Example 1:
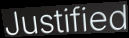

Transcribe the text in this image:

Justified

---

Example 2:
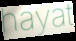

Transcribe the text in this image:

hayat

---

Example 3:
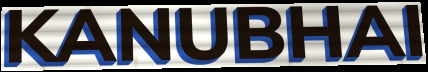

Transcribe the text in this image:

KANUBHAI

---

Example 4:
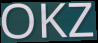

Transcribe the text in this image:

OKZ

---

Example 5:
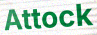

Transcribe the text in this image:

Attock